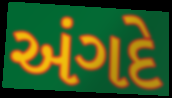
અંગદે